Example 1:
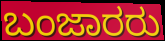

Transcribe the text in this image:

ಬಂಜಾರರು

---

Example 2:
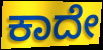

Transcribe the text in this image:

ಕಾದೇ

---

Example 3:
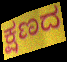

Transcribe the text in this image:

ಕ್ಷಣದ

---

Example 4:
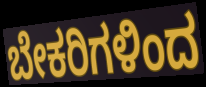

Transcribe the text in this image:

ಬೇಕರಿಗಳಿಂದ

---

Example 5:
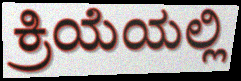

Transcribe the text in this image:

ಕ್ರಿಯೆಯಲ್ಲಿ